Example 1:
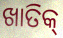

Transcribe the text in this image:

ଖାତିକ୍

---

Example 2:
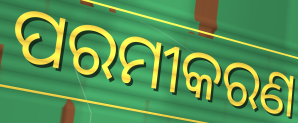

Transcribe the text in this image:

ପରମୀକରଣ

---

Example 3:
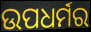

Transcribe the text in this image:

ଉପଧର୍ମର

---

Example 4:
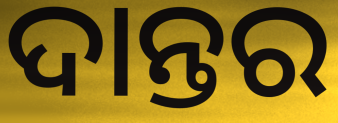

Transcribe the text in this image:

ଦାନ୍ତର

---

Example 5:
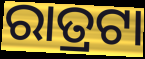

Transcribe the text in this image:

ରାତ୍ରଟା